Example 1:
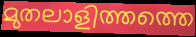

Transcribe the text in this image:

മുതലാളിത്തത്തെ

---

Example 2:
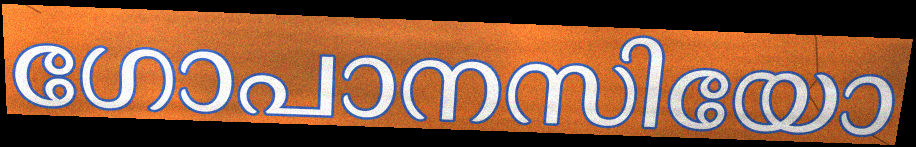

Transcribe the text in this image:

ഗോപാനസിയോ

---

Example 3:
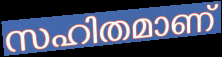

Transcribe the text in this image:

സഹിതമാണ്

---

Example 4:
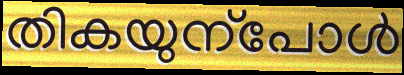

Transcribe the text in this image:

തികയുന്പോൾ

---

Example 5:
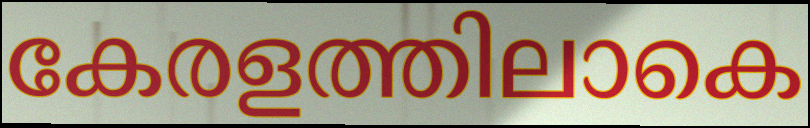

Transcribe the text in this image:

കേരളത്തിലാകെ